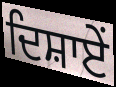
ਦਿਸ਼ਾਏਂ